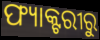
ଫ୍ୟାକ୍ଟରୀରୁ